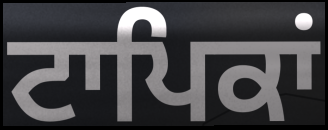
ਟਾਪਿਕਾਂ